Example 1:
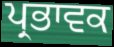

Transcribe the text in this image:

ਪ੍ਰਭਾਵਕ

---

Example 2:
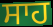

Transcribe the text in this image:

ਸਾਹ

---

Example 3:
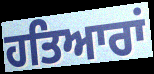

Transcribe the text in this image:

ਹਤਿਆਰਾਂ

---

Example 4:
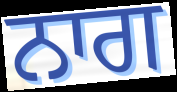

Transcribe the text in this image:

ਨਾਗ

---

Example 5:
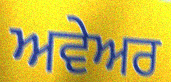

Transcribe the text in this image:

ਅਵੇਅਰ